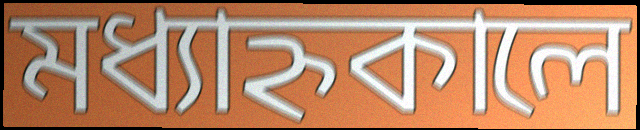
মধ্যাহ্নকালে